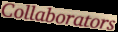
Collaborators